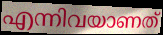
എന്നിവയാണത്